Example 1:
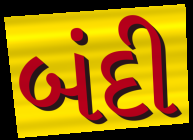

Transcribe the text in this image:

બંદી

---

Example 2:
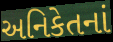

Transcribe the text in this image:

અનિકેતનાં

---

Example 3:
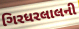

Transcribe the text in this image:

ગિરધરલાલની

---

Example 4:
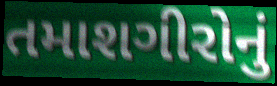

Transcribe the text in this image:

તમાશગીરોનું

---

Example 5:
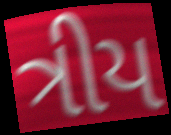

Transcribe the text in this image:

ત્રીય